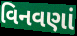
વિનવણાં